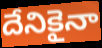
దేనికైనా